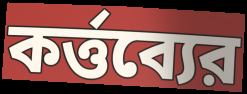
কর্ত্তব্যের